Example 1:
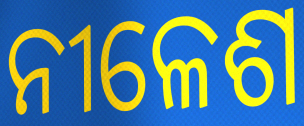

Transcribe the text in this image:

ନୀଳେଶ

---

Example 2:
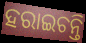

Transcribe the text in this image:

ହରାଇଚନ୍ତି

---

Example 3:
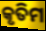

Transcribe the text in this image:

କୃତିମ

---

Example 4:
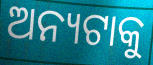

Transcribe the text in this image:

ଅନ୍ୟଟାକୁ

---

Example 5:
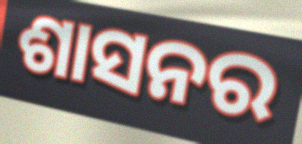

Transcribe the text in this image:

ଶାସନର